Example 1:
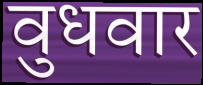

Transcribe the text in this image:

वुधवार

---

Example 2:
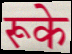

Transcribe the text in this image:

रूके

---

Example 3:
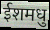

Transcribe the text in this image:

ईशमधु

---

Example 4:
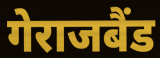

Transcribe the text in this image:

गेराजबैंड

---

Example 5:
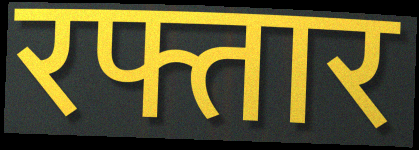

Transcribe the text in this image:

रफ्तार